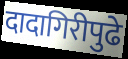
दादागिरीपुढे